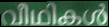
വീഥികൾ